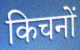
किचनों